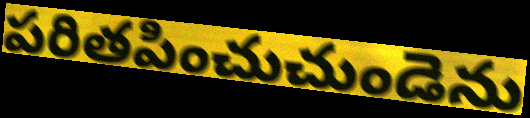
పరితపించుచుండెను